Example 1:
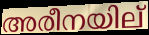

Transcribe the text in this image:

അരീനയില്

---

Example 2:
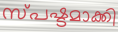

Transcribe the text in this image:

സ്പഷ്ടമാക്കി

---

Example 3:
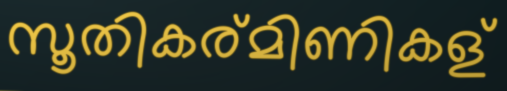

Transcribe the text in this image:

സൂതികര്മിണികള്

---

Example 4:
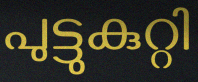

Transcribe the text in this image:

പുട്ടുകുറ്റി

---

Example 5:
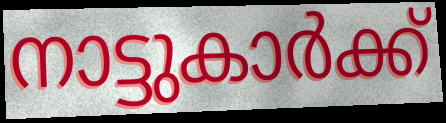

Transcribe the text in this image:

നാട്ടുകാർക്ക്